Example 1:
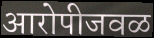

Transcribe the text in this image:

आरोपीजवळ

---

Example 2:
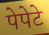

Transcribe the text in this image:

पेपेटे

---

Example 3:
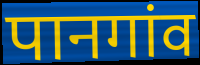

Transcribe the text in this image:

पानगांव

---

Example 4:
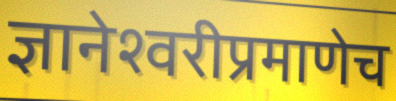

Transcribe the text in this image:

ज्ञानेश्वरीप्रमाणेच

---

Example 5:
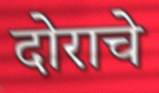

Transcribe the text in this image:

दोराचे